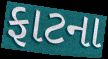
ફાટના